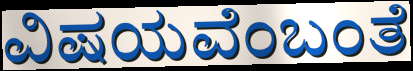
ವಿಷಯವೆಂಬಂತೆ